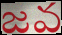
జవ